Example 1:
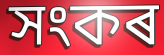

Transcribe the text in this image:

সংকৰ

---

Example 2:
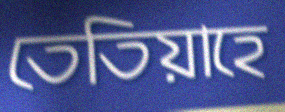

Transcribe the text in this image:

তেতিয়াহে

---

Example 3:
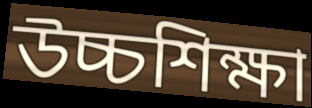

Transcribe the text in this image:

উচ্চশিক্ষা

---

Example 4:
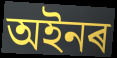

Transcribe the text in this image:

অইনৰ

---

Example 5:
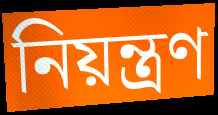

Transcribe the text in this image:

নিয়ন্ত্ৰণ